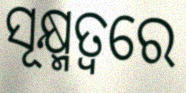
ସୂକ୍ଷ୍ମତ୍ୱରେ